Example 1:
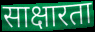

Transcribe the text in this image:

साक्षारता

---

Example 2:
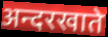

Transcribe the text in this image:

अन्दरखाते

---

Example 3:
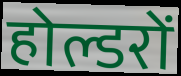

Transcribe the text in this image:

होल्‍डरों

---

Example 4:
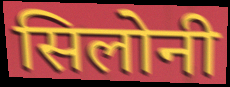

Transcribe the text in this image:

सिलोनी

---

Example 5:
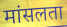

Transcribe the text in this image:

मांसलता